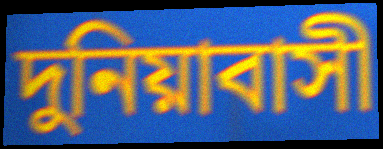
দুনিয়াবাসী